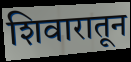
शिवारातून